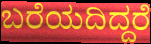
ಬರೆಯದಿದ್ದರೆ